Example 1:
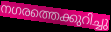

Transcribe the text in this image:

നഗരത്തെക്കുറിച്ചു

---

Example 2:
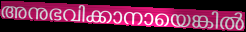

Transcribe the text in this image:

അനുഭവിക്കാനായെങ്കിൽ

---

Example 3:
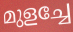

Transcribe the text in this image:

മുളച്ചേ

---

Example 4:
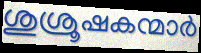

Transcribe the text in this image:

ശുശ്രൂഷകന്മാർ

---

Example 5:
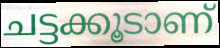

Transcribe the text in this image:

ചട്ടക്കൂടാണ്